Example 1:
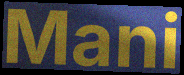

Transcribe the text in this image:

Mani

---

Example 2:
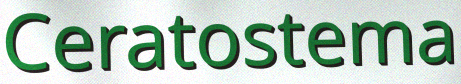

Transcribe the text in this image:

Ceratostema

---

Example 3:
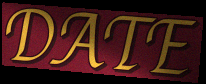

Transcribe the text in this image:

DATE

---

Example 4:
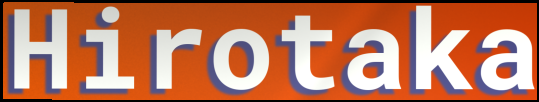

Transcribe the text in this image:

Hirotaka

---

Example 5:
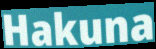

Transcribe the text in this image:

Hakuna